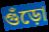
গুঁড়ো